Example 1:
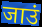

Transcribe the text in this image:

जाउं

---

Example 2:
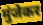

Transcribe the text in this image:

मुंजेकर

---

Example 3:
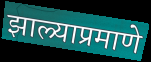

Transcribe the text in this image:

झाल्याप्रमाणे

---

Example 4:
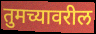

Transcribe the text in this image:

तुमच्यावरील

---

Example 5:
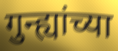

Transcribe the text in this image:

गुन्ह्यांच्या